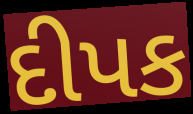
દીપક